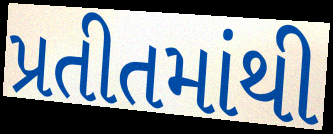
પ્રતીતમાંથી